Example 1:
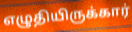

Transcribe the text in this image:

எழுதியிருக்கார்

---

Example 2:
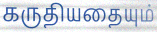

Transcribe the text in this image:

கருதியதையும்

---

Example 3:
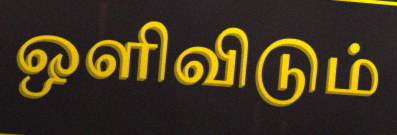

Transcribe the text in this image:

ஒளிவிடும்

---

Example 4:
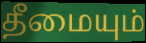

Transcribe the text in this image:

தீமையும்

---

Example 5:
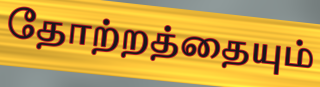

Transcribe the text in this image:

தோற்றத்தையும்